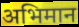
अभिमान